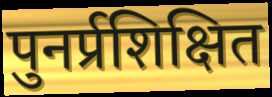
पुनर्प्रशिक्षित